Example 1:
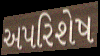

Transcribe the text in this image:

અપરિશેષ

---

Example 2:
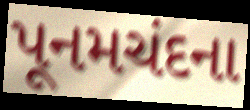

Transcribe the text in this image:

પૂનમચંદના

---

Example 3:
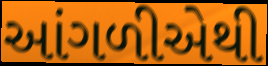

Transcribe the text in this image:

આંગળીએથી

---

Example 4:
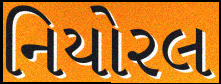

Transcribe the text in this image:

નિયોરલ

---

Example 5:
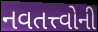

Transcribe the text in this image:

નવતત્ત્વોની